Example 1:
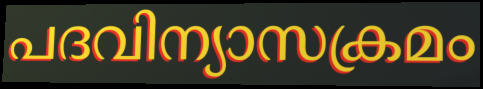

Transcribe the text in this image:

പദവിന്യാസക്രമം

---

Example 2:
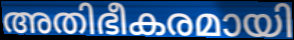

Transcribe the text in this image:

അതിഭീകരമായി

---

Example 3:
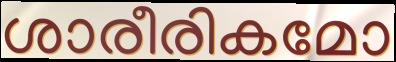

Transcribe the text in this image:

ശാരീരികമോ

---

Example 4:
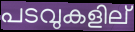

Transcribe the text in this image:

പടവുകളില്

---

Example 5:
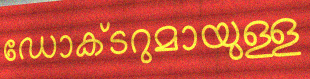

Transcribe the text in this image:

ഡോക്ടറുമായുള്ള